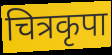
चित्रकृपा